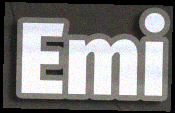
Emi